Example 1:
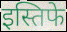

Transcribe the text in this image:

इस्तिफे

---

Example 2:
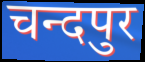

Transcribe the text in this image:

चन्दपुर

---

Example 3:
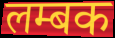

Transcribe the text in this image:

लम्बक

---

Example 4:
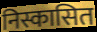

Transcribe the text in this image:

निस्कासित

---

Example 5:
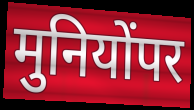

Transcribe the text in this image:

मुनियोंपर